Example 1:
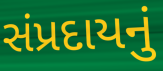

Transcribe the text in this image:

સંપ્રદાયનું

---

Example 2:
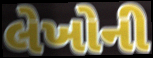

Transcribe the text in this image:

લેખોની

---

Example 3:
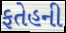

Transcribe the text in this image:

ફતેહની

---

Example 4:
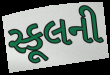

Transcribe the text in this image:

સ્કૂલની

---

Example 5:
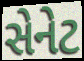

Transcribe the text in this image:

સેનેટ